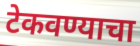
टेकवण्याचा